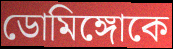
ডোমিঙ্গোকে